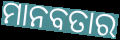
ମାନବତାର